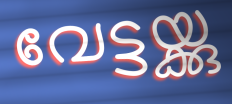
വേട്ടയ്ക്കു